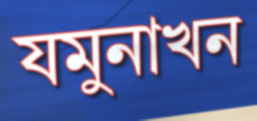
যমুনাখন